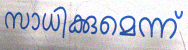
സാധിക്കുമെന്ന്